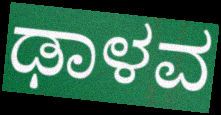
ಢಾಳವ